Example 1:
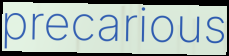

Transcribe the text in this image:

precarious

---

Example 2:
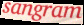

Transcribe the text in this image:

sangram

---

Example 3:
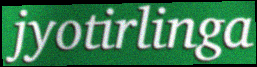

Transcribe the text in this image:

jyotirlinga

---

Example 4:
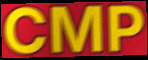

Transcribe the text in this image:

CMP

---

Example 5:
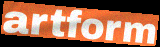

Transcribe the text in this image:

artform